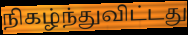
நிகழ்ந்துவிட்டது